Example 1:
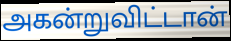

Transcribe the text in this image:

அகன்றுவிட்டான்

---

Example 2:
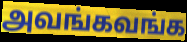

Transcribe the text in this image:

அவங்கவங்க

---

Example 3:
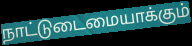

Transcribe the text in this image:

நாட்டுடைமையாக்கும்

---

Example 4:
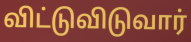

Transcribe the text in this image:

விட்டுவிடுவார்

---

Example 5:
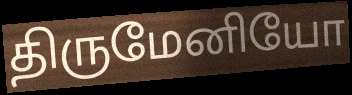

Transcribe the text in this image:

திருமேனியோ